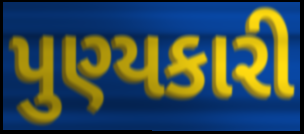
પુણ્યકારી